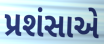
પ્રશંસાએ